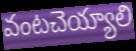
వంటచెయ్యాలి